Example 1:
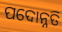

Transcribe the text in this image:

ପଦୋନ୍ନତି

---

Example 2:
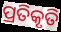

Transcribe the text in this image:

ପ୍ରତିକୃତି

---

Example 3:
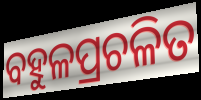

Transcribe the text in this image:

ବହୁଳପ୍ରଚଳିତ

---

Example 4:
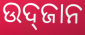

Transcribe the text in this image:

ଉଦ୍‌ଜାନ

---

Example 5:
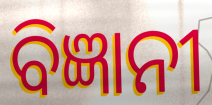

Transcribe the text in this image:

ବିଜ୍ଞାନୀ